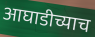
आघाडीच्याच